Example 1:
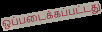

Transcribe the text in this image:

ஒப்படைக்கப்பட்டது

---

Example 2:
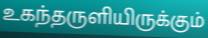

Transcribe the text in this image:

உகந்தருளியிருக்கும்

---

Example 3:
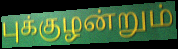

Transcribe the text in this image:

புக்குழன்றும்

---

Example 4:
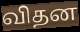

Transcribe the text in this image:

விதன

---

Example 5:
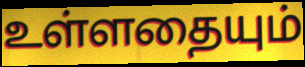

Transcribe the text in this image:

உள்ளதையும்